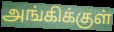
அங்கிக்குள்